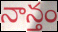
నాన్తం